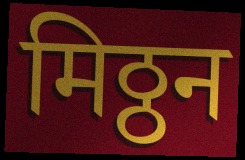
मिठ्ठन